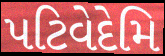
પટિવેદેમિ